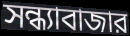
সন্ধ্যাবাজার